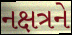
નક્ષત્રને